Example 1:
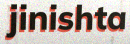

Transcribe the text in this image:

jinishta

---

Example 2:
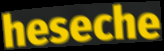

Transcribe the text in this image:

heseche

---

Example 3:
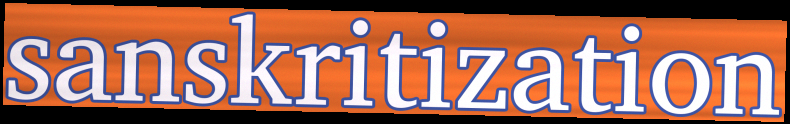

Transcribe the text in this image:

sanskritization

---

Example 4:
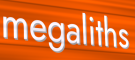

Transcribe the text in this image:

megaliths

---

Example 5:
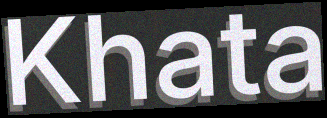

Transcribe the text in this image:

Khata